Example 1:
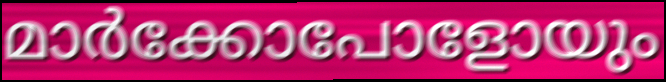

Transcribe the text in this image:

മാർക്കോപോളോയും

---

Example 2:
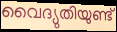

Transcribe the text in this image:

വൈദ്യുതിയുണ്ട്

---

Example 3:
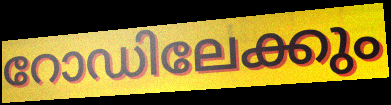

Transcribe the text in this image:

റോഡിലേക്കും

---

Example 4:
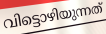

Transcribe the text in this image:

വിട്ടൊഴിയുന്നത്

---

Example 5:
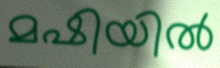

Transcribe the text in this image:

മഷിയിൽ